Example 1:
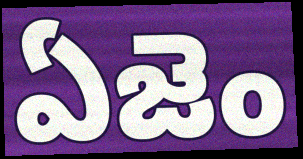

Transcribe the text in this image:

ఏజెం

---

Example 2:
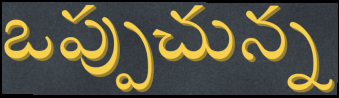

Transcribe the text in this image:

ఒప్పుచున్న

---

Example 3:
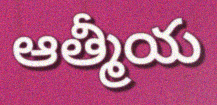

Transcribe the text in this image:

ఆత్మీయ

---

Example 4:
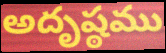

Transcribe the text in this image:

అదృష్ఠము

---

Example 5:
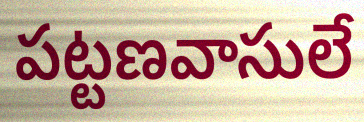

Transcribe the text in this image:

పట్టణవాసులే